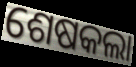
ଶେଷକଲା